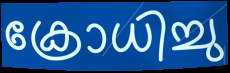
ക്രോധിച്ചു